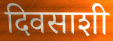
दिवसाशी